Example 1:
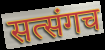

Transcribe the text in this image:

सत्संगच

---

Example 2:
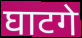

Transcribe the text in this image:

घाटगे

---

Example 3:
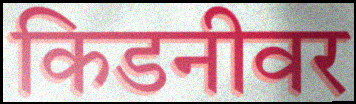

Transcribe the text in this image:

किडनीवर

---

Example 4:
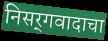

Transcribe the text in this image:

निसर्गवादाचा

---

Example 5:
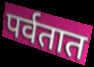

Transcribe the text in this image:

पर्वतात